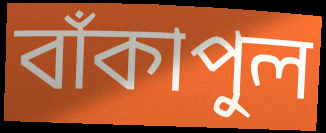
বাঁকাপুল